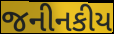
જનીનકીય